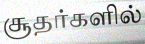
சூதர்களில்